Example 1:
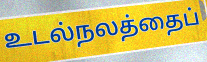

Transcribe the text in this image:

உடல்நலத்தைப்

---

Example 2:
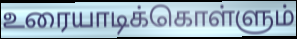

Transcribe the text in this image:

உரையாடிக்கொள்ளும்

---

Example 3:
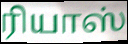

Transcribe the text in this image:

ரியாஸ்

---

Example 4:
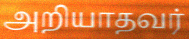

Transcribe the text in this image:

அறியாதவர்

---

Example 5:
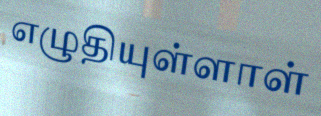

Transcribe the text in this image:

எழுதியுள்ளாள்